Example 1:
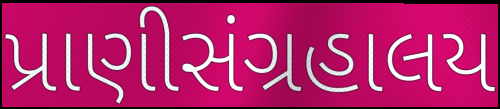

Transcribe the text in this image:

પ્રાણીસંગ્રહાલય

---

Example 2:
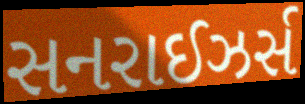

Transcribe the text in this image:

સનરાઈઝર્સ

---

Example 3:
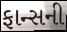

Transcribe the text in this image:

ફાન્સની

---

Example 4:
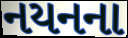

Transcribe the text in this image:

નયનના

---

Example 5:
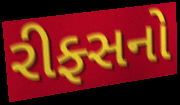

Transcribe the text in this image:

રીફ્સનો